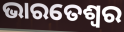
ଭାରତେଶ୍ୱର